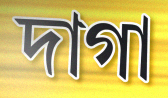
দাগা